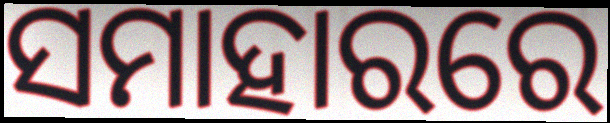
ସମାହାରରେ